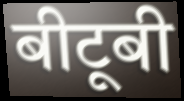
बीटूबी